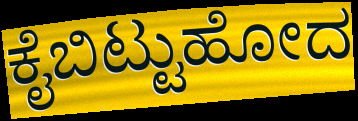
ಕೈಬಿಟ್ಟುಹೋದ